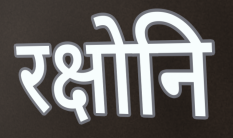
रक्षोनि